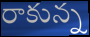
రాకున్న